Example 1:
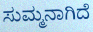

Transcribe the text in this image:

ಸುಮ್ಮನಾಗಿದೆ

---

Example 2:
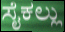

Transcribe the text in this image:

ಸೈಕಲ್ಲು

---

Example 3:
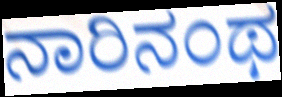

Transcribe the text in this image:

ನಾರಿನಂಥ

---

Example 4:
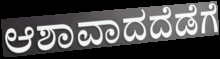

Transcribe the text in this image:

ಆಶಾವಾದದೆಡೆಗೆ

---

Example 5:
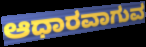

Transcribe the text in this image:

ಆಧಾರವಾಗುವ